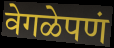
वेगळेपणं